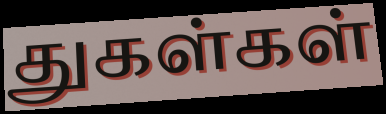
துகள்கள்